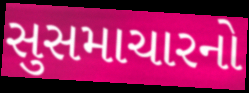
સુસમાચારનો